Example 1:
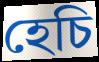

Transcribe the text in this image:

হেচি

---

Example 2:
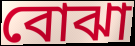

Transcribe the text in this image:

বোঝা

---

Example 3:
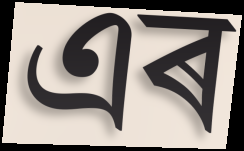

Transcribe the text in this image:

এৰ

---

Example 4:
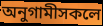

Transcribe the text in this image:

অনুগামীসকলে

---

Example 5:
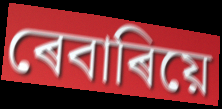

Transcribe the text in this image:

ৰেবাৰিয়ে